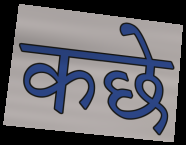
कछे